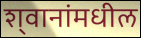
श्वानांमधील